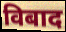
विबाद